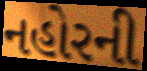
નહોરની